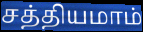
சத்தியமாம்